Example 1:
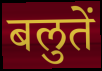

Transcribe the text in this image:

बलुतें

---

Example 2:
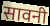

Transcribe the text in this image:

सावनी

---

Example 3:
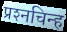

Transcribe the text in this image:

प्रश्नचिन्ह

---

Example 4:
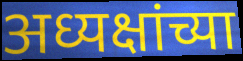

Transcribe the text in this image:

अध्यक्षांच्या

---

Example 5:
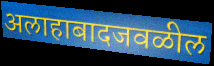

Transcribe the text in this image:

अलाहाबादजवळील